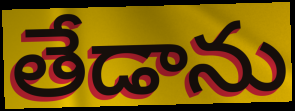
తేడాను